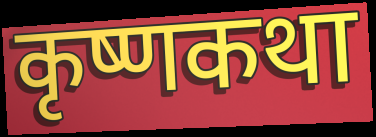
कृष्णकथा